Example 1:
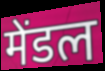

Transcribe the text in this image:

मेंडल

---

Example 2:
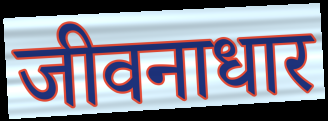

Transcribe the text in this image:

जीवनाधार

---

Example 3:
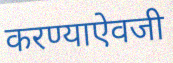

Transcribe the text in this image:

करण्याऐवजी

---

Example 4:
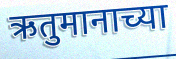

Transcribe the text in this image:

ऋतुमानाच्या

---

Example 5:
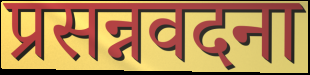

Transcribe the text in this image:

प्रसन्नवदना